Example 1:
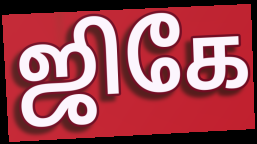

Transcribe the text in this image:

ஜிகே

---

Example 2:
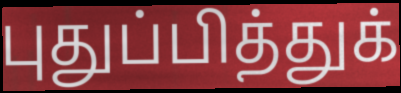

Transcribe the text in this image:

புதுப்பித்துக்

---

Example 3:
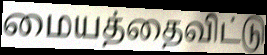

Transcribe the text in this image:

மையத்தைவிட்டு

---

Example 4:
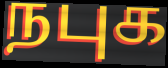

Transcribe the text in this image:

நபுக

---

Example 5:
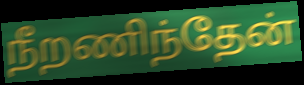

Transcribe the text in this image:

நீறணிந்தேன்